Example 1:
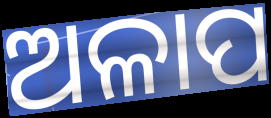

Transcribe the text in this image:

ଅଳାପ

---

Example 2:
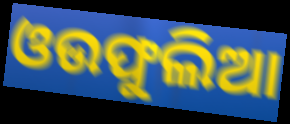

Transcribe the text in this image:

ଓଉଫୁଲିଆ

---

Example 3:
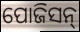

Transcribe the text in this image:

ପୋଜିସନ୍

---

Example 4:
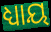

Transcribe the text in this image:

ଧ୍ୟାୟ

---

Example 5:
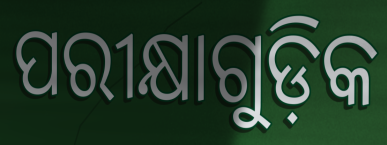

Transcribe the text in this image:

ପରୀକ୍ଷାଗୁଡ଼ିକ